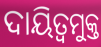
ଦାୟିତ୍ବମୁକ୍ତ